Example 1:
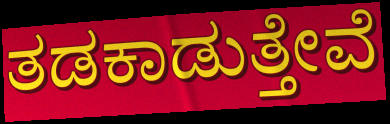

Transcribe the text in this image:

ತಡಕಾಡುತ್ತೇವೆ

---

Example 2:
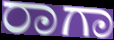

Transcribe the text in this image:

ರಾಗಾ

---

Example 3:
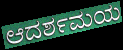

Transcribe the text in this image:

ಆದರ್ಶಮಯ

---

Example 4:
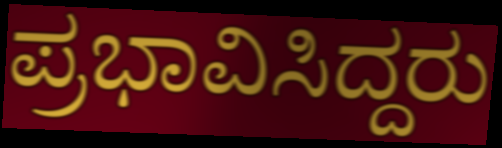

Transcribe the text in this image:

ಪ್ರಭಾವಿಸಿದ್ದರು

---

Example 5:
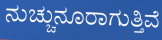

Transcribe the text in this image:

ನುಚ್ಚುನೂರಾಗುತ್ತಿವೆ